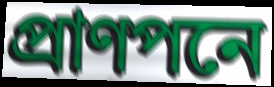
প্রাণপনে